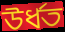
উৰ্ধত